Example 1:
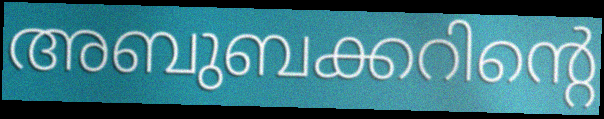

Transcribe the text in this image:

അബുബക്കറിന്റെ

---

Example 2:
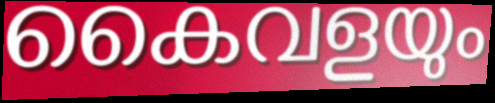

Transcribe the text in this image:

കൈവളയും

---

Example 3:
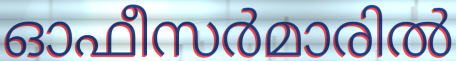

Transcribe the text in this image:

ഓഫീസർമാരിൽ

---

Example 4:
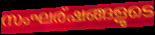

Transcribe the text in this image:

സംഘര്ഷങ്ങളുടെ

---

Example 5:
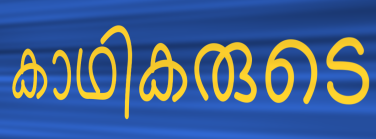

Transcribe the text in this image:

കാഥികരുടെ